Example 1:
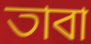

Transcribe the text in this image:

তাবা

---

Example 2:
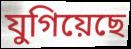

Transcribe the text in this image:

যুগিয়েছে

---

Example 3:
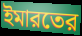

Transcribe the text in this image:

ইমারতের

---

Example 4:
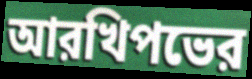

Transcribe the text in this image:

আরখিপভের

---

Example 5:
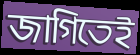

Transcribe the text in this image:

জাগিতেই